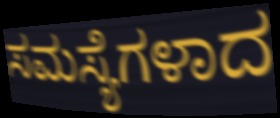
ಸಮಸ್ಯೆಗಳಾದ